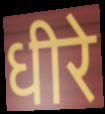
धीरे